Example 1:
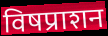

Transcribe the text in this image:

विषप्राशन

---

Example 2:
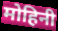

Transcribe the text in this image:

मोहिनी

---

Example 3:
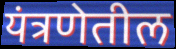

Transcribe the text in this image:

यंत्रणेतील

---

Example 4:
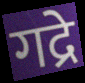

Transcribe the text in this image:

गद्रे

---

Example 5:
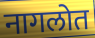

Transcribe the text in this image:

नागलोत